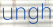
ungh